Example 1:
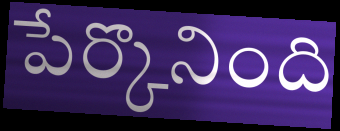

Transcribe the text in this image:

పేర్కొనింది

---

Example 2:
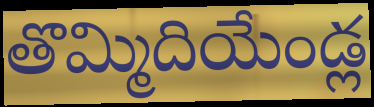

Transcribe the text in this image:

తొమ్మిదియేండ్ల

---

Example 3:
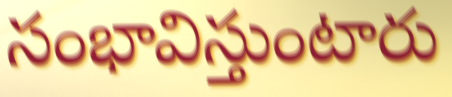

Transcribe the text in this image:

సంభావిస్తుంటారు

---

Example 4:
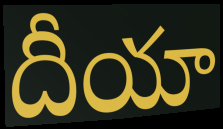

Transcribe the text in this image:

దీయా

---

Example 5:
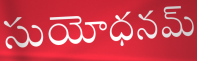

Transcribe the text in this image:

సుయోధనమ్